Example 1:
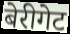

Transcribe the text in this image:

बेरीगेट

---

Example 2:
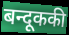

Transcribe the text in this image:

बन्दूककी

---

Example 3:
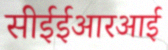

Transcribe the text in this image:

सीईईआरआई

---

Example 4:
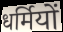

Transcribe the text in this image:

धर्मियों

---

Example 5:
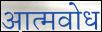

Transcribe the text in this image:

आत्मवोध